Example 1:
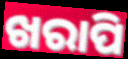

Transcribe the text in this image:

ଖରାପି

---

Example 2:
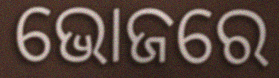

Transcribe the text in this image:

ଭୋଜରେ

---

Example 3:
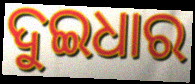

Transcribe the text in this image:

ଦୁଇଧାର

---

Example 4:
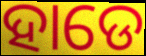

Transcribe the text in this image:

ହାଡେ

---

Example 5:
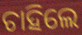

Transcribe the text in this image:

ଚାହିଲେ